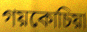
গয়কোচিয়া